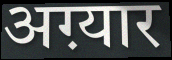
अग़्यार